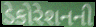
ડેકોરેશનની